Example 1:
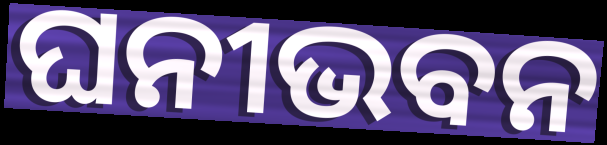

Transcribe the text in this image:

ଘନୀଭବନ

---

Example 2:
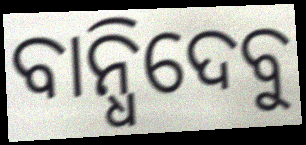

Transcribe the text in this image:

ବାନ୍ଧିଦେବୁ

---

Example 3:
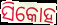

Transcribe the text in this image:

ସିକୋହ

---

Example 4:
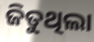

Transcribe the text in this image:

ଜିତୁଥିଲା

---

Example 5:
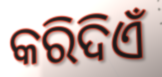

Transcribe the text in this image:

କରିଦିଏଁ